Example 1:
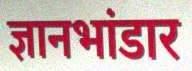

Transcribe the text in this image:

ज्ञानभांडार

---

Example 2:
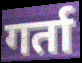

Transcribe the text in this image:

गर्ता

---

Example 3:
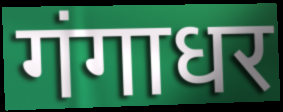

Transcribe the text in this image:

गंगाधर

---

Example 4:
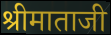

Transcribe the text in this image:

श्रीमाताजी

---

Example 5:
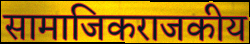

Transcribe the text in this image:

सामाजिकराजकीय